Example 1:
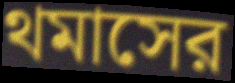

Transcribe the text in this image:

থমাসের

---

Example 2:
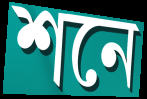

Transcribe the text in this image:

শনে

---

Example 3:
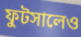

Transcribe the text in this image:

ফুটসালেও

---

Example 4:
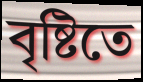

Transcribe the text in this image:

বৃষ্টিতে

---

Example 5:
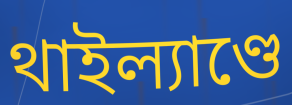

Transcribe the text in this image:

থাইল্যাণ্ডে